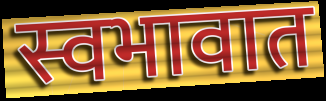
स्वभावात